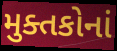
મુક્તકોનાં